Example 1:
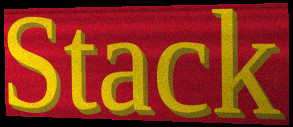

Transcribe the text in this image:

Stack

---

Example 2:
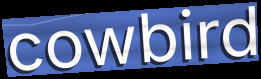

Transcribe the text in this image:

cowbird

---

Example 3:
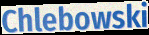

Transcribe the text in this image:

Chlebowski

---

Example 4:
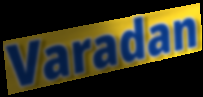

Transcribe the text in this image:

Varadan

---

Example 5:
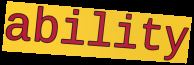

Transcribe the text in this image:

ability